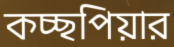
কচ্ছপিয়ার